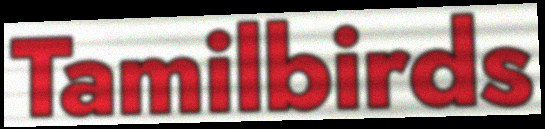
Tamilbirds